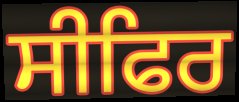
ਸੀਫਿਰ